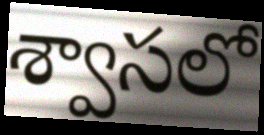
శ్వాసలో